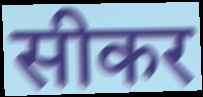
सीकर